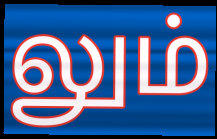
லும்